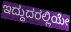
ಇದ್ದುದರಲ್ಲಿಯೇ